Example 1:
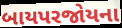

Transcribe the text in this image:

બાયપરજોયના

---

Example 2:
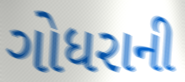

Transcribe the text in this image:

ગોધરાની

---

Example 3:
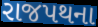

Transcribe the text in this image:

રાજપથના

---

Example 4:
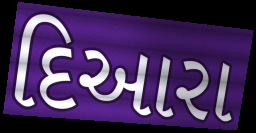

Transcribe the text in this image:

દિઆરા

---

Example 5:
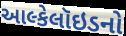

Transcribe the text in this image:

આલ્કેલૉઇડનો